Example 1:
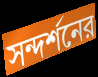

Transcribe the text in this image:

সন্দর্শনের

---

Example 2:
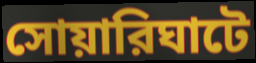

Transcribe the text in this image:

সোয়ারিঘাটে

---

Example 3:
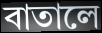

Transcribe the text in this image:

বাতালে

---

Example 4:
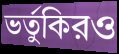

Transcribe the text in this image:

ভর্তুকিরও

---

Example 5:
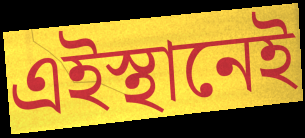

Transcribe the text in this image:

এইস্থানেই